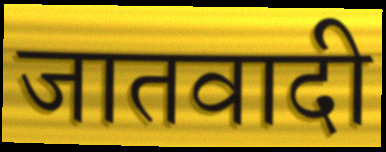
जातवादी